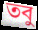
তবু